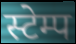
स्टेम्प